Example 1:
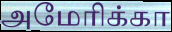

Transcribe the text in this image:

அமேரிக்கா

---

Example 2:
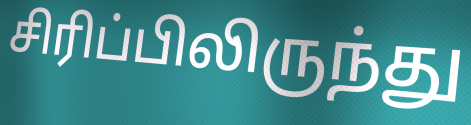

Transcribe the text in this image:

சிரிப்பிலிருந்து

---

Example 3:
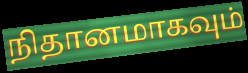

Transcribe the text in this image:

நிதானமாகவும்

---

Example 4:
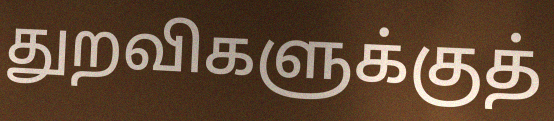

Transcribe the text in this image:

துறவிகளுக்குத்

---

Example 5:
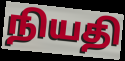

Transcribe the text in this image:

நியதி